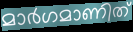
മാർഗമാണിത്